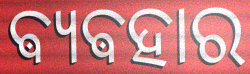
ଵ୍ଯଵହାର